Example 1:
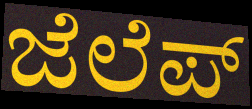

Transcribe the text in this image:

ಜೆಲೆಪ್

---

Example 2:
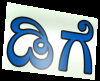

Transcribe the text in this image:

ಡಿಗೆ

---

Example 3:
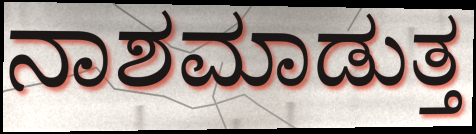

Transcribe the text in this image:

ನಾಶಮಾಡುತ್ತ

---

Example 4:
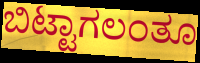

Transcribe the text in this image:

ಬಿಟ್ಟಾಗಲಂತೂ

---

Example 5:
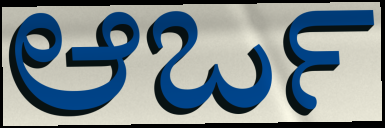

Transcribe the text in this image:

ಆರ್ಒ